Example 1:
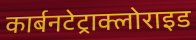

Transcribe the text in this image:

कार्बनटेट्राक्लोराइड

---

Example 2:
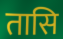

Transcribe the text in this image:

तासि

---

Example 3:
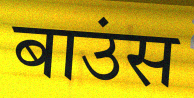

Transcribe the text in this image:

बाउंस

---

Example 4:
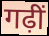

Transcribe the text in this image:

गढ़ीं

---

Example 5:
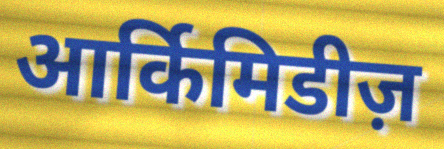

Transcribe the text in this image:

आर्किमिडीज़